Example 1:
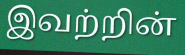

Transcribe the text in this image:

இவற்றின்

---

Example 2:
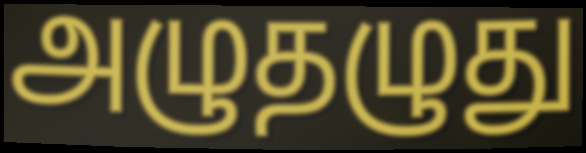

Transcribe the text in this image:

அழுதழுது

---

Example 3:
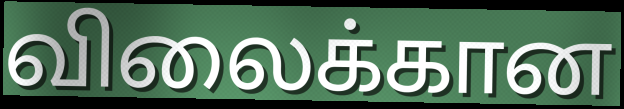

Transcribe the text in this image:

விலைக்கான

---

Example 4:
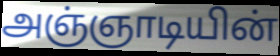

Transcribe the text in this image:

அஞ்ஞாடியின்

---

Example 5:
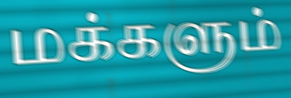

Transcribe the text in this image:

மக்களும்